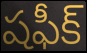
షఫీక్